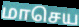
மாசெய